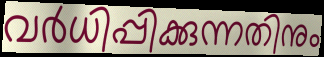
വർധിപ്പിക്കുന്നതിനും